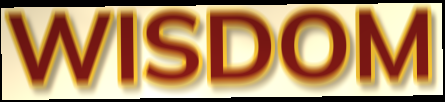
WISDOM